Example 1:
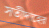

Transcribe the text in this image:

সতীদাহের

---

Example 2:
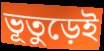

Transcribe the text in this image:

ভূতুড়েই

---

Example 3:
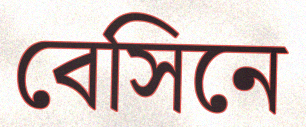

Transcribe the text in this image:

বেসিনে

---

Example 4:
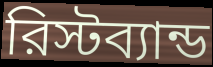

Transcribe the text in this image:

রিস্টব্যান্ড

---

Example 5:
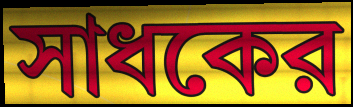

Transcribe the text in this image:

সাধকের